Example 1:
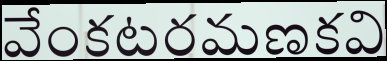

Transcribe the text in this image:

వేంకటరమణకవి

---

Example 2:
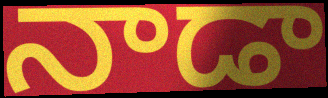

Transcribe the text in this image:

నాడా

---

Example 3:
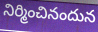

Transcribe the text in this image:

నిర్మించినందున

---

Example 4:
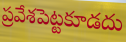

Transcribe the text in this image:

ప్రవేశపెట్టకూడదు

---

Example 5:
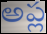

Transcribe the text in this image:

అప్ల